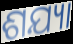
ଶଯ୍ୟା